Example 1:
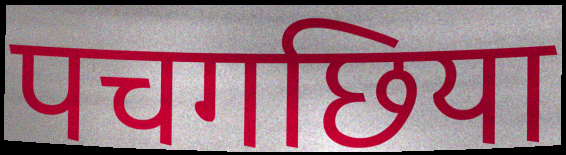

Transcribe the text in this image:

पचगछिया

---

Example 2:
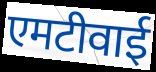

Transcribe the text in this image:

एमटीवाई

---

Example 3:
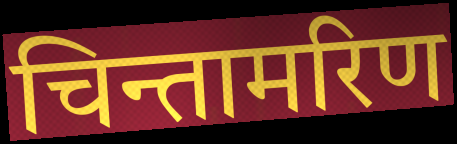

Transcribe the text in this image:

चिन्तामरिण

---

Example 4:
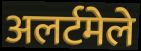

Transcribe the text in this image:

अलर्टमेले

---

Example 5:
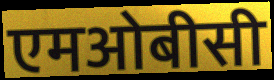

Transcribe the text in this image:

एमओबीसी